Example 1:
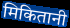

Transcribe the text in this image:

मिकितानी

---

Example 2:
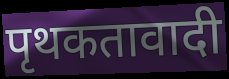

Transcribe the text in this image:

पृथकतावादी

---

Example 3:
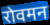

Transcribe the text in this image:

रोवमन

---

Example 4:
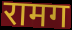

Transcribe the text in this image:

रामग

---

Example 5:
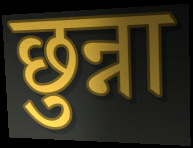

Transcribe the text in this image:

छुन्ना